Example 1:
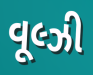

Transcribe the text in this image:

વૂલ્ઝી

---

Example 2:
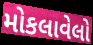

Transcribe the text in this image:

મોકલાવેલો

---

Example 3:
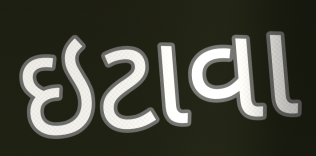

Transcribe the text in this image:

ઇટાવા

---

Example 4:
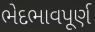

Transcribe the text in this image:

ભેદભાવપૂર્ણ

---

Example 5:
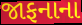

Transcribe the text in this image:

જાફનાના